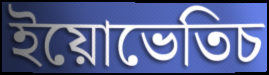
ইয়োভেতিচ